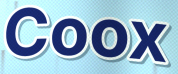
Coox